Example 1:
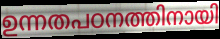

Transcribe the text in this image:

ഉന്നതപഠനത്തിനായി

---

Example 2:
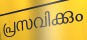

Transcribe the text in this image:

പ്രസവിക്കും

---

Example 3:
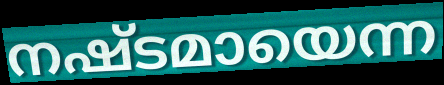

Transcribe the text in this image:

നഷ്ടമായെന്ന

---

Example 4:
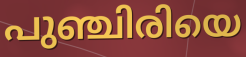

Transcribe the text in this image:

പുഞ്ചിരിയെ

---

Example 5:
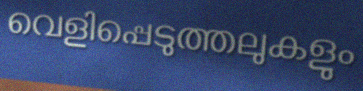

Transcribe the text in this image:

വെളിപ്പെടുത്തലുകളും